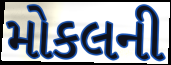
મોકલની